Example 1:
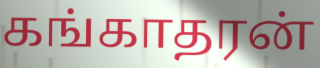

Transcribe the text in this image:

கங்காதரன்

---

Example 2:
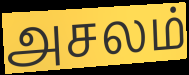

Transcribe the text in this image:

அசலம்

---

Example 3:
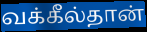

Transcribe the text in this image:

வக்கீல்தான்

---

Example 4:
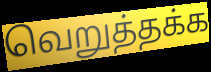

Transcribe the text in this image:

வெறுத்தக்க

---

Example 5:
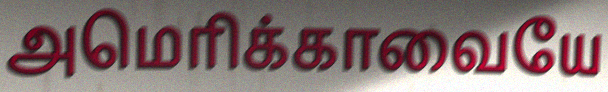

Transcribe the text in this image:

அமெரிக்காவையே